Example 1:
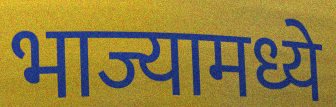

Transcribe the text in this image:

भाज्यामध्ये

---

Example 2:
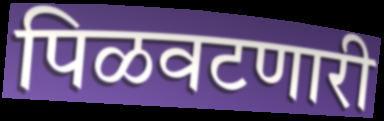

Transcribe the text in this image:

पिळवटणारी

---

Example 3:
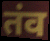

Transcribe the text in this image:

तंव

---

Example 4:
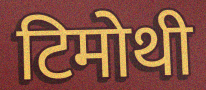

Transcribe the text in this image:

टिमोथी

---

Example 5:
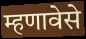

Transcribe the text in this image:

म्हणावेसे